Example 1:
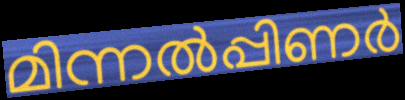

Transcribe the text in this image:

മിന്നൽപ്പിണർ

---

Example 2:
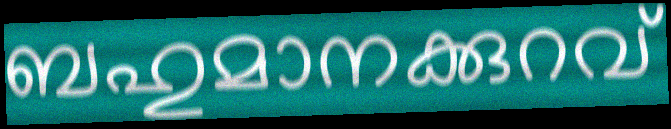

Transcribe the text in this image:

ബഹുമാനക്കുറവ്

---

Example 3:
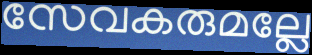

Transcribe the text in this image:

സേവകരുമല്ലേ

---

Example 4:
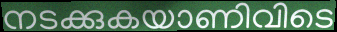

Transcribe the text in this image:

നടക്കുകയാണിവിടെ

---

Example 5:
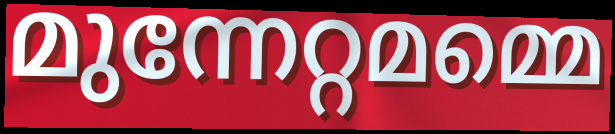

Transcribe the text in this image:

മുന്നേറ്റമമ്മെ